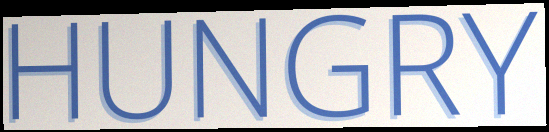
HUNGRY